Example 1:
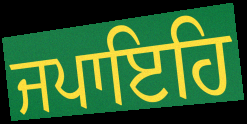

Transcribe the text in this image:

ਜਪਾਇਹਿ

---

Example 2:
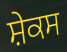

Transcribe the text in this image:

ਸ਼ੇਕਸ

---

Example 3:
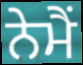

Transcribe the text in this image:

ਨੇਮੈਂ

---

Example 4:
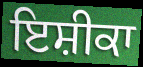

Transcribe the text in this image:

ਇਸ਼ੀਕਾ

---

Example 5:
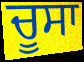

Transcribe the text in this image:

ਚੂਸਾ